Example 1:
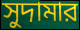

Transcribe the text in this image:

সুদামার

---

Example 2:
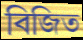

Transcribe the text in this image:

বিজিত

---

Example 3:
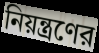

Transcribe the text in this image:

নিয়ন্ত্রণের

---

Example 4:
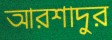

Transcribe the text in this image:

আরশাদুর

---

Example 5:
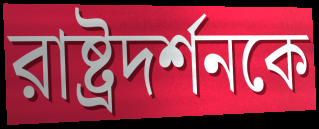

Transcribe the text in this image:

রাষ্ট্রদর্শনকে